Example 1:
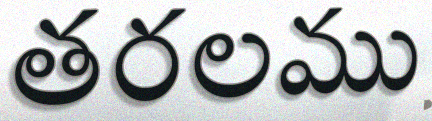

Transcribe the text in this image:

తరలము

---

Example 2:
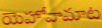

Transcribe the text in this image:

యెహోవామాట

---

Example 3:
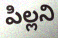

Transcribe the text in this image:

పిల్లని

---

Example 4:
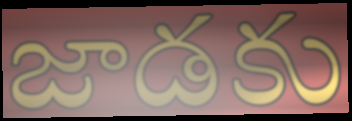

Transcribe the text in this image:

జాడకు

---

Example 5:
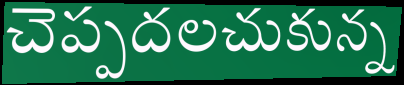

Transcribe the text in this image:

చెప్పదలచుకున్న